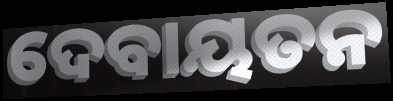
ଦେବାୟତନ